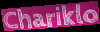
Chariklo